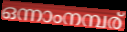
ഒന്നാംനമ്പര്